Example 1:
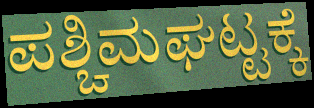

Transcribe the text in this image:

ಪಶ್ಚಿಮಘಟ್ಟಕ್ಕೆ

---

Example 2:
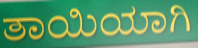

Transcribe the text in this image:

ತಾಯಿಯಾಗಿ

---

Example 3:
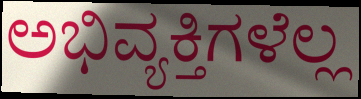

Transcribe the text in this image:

ಅಭಿವ್ಯಕ್ತಿಗಳೆಲ್ಲ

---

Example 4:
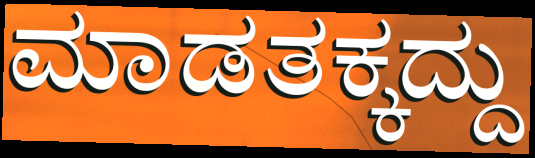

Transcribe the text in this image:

ಮಾಡತಕ್ಕದ್ದು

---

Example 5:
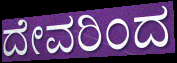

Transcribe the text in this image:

ದೇವರಿಂದ